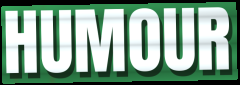
HUMOUR